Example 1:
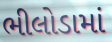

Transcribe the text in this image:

ભીલોડામાં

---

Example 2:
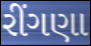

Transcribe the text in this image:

રીંગણા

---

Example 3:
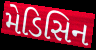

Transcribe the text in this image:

મેડિસિન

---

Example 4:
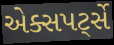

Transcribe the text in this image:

એક્સપર્ટ્સે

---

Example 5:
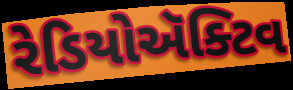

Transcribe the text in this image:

રેડિયોઍક્ટિવ